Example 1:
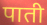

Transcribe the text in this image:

पाती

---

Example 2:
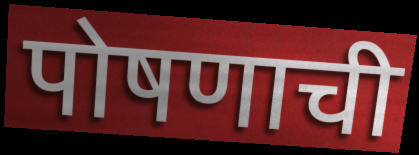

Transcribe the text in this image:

पोषणाची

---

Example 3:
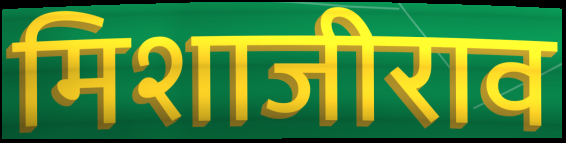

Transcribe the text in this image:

मिशाजीराव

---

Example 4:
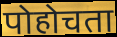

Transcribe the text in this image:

पोहोचता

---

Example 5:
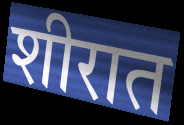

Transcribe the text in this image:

शीरात